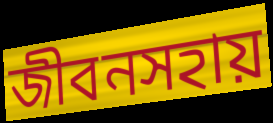
জীবনসহায়